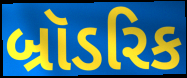
બ્રૉડરિક